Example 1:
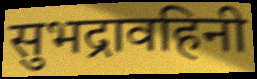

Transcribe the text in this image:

सुभद्रावहिनी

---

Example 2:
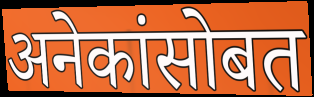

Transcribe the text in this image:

अनेकांसोबत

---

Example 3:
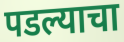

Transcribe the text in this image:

पडल्याचा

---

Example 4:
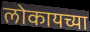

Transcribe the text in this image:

लोकायच्या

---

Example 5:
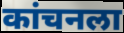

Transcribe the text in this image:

कांचनला